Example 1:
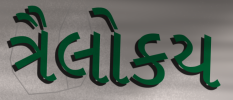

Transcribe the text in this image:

ત્રૈલોકય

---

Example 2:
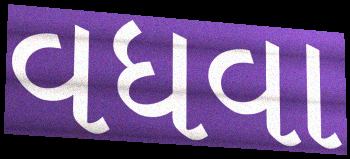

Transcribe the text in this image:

વધવા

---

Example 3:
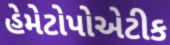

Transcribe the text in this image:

હેમેટોપોએટીક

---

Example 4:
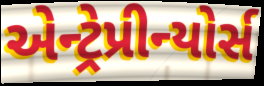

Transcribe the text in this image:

એન્ટ્રેપ્રીન્યોર્સ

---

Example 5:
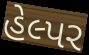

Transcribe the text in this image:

હેલ્પર